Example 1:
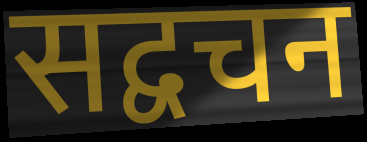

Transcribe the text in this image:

सद्वचन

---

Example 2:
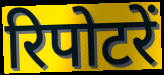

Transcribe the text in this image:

रिपोटरें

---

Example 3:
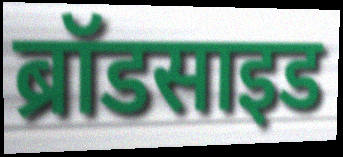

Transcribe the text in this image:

ब्रॉडसाइड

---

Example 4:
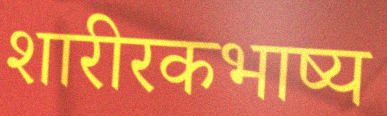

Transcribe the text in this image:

शारीरकभाष्य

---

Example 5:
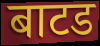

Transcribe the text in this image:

बाटड